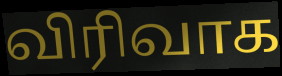
விரிவாக